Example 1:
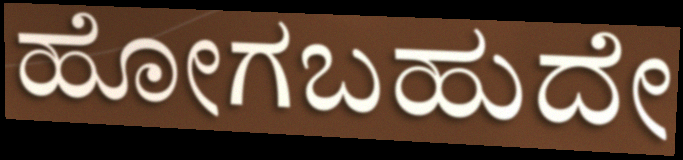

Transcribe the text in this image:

ಹೋಗಬಹುದೇ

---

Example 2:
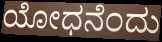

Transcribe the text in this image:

ಯೋಧನೆಂದು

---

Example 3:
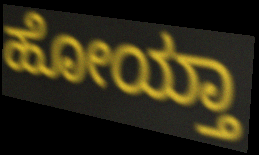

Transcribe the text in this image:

ಹೋಯ್ತಾ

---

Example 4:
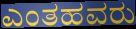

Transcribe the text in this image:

ಎಂತಹವರು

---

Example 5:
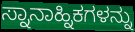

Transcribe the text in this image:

ಸ್ನಾನಾಹ್ನಿಕಗಳನ್ನು